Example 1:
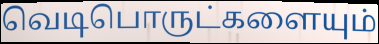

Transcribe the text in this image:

வெடிபொருட்களையும்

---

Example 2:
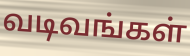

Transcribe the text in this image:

வடிவங்கள்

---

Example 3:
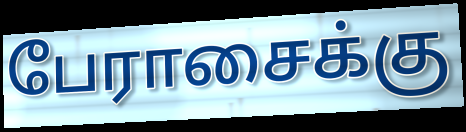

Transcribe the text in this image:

பேராசைக்கு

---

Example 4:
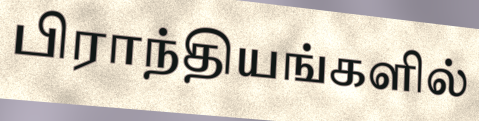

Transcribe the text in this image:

பிராந்தியங்களில்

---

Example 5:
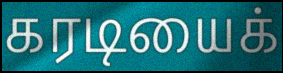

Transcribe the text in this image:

கரடியைக்